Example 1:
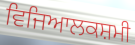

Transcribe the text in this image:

ਵਿਜਿਆਲਕਸ਼ਮੀ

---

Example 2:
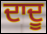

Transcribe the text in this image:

ਦਾਦੂ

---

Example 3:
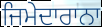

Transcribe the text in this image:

ਜਿਮੇਦਾਰਾਨਾ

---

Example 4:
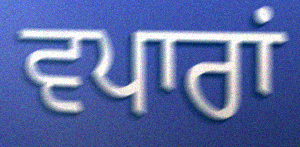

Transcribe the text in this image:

ਵਪਾਰਾਂ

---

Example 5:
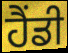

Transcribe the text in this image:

ਹੈਂਡੀ